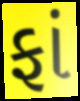
ફાં